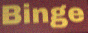
Binge